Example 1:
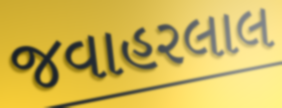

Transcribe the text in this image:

જવાહરલાલ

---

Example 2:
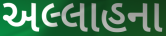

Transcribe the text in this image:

અલ્લાહના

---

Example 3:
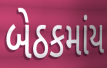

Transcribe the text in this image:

બેઠકમાંય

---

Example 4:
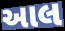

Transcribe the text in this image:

આલ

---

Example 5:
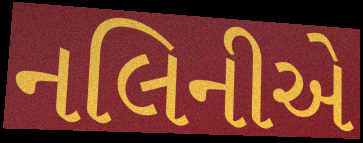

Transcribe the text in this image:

નલિનીએ